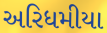
અરિધમીયા